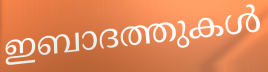
ഇബാദത്തുകൾ